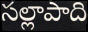
సల్లాపాది